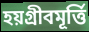
হয়গ্রীবমূর্ত্তি